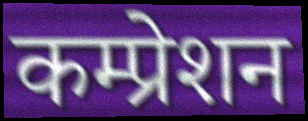
कम्प्रेशन